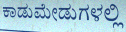
ಕಾಡುಮೇಡುಗಳಲ್ಲಿ